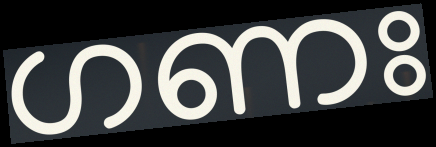
ഗണഃ